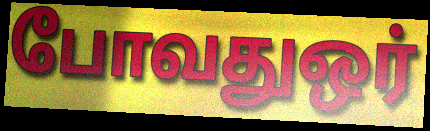
போவதுஒர்